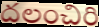
దలంచిరి